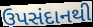
ઉપસંદાનથી